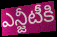
ఎన్జీటీకి